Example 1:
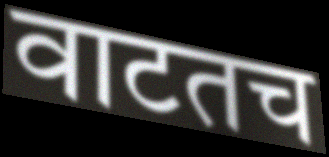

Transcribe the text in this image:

वाटतच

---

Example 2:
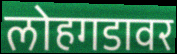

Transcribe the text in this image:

लोहगडावर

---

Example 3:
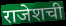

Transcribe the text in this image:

राजेशची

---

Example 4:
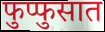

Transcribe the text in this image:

फुप्फुसात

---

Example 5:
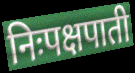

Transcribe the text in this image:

निःपक्षपाती